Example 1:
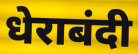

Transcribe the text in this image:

धेराबंदी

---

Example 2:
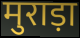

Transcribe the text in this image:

मुराड़ा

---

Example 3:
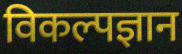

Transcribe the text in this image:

विकल्पज्ञान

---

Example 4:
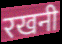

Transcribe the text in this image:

रखनी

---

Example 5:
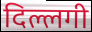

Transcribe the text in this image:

दिल्‍लगी